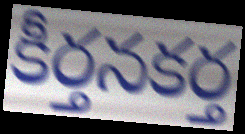
కీర్తనకర్త